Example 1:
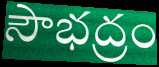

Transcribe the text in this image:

సౌభద్రం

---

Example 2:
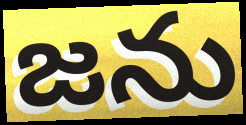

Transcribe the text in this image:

జను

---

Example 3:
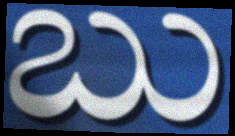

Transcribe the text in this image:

బు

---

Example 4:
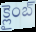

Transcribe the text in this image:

క్లైంబ్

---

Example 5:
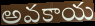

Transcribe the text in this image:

అవకాయ